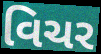
વિચર